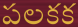
పలకక